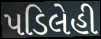
પડિલેહી